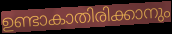
ഉണ്ടാകാതിരിക്കാനും